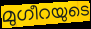
മുഗീറയുടെ